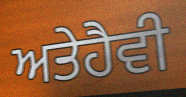
ਅਤੇਹੈਵੀ